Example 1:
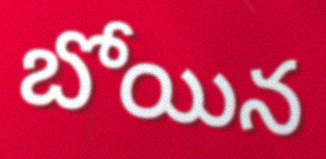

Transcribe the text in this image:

బోయిన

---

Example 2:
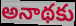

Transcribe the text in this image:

అనాథకు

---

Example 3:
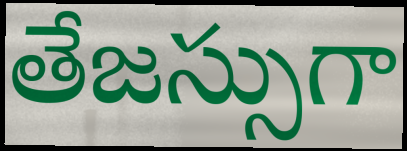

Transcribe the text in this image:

తేజస్సుగా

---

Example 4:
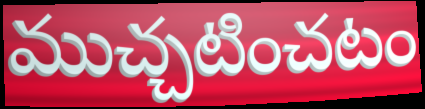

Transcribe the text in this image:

ముచ్చటించటం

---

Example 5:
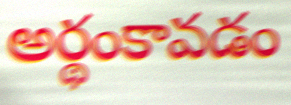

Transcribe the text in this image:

అర్థంకావడం